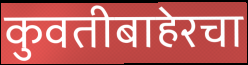
कुवतीबाहेरचा